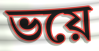
ভয়ে